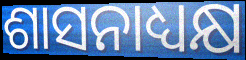
ଶାସନାଧ୍ୟକ୍ଷ